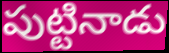
పుట్టినాడు